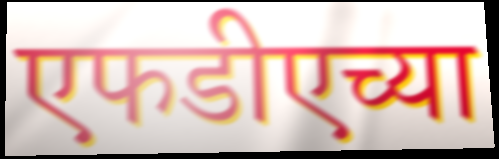
एफडीएच्या